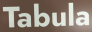
Tabula